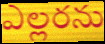
ఎల్లరను